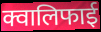
क्वालिफाई